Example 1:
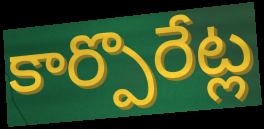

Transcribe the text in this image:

కార్పొరేట్ల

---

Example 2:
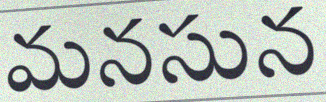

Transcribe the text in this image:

మనసున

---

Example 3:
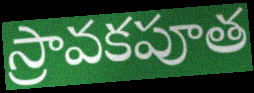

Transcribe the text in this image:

స్రావకపూత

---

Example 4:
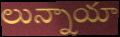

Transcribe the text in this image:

లున్నాయా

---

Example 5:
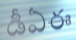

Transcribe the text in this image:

డీఏఈ